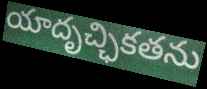
యాదృచ్ఛికతను